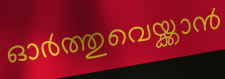
ഓർത്തുവെയ്ക്കാൻ